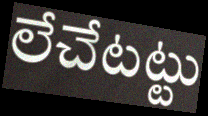
లేచేటట్టు